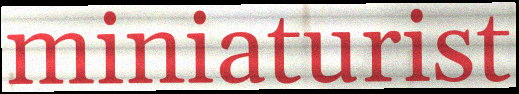
miniaturist